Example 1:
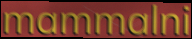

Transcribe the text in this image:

mammalni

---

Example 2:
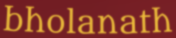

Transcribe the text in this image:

bholanath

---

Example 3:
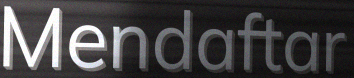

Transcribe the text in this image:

Mendaftar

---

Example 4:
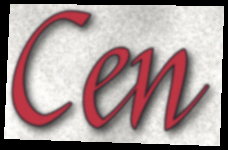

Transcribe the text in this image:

Cen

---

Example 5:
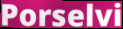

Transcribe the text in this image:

Porselvi